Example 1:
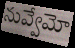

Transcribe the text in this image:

నువ్వేమో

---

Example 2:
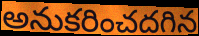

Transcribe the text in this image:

అనుకరించదగిన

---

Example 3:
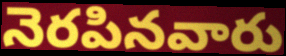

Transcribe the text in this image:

నెరపినవారు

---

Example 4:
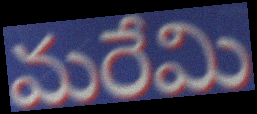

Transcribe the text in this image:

మరేమి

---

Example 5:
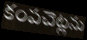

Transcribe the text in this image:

కంపచెట్లను